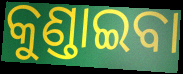
କୁଣ୍ଡାଇବା